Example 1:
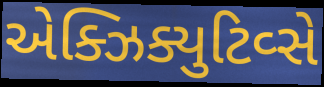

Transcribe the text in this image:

એક્ઝિક્યુટિવ્સે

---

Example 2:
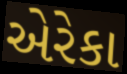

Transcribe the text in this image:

એરેકા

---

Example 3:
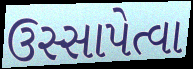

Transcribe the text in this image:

ઉસ્સાપેત્વા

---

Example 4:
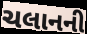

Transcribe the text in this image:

ચલાનની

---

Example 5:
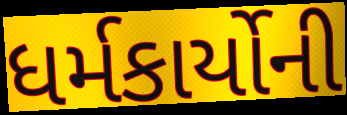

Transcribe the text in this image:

ધર્મકાર્યોની